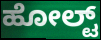
ಹೋಲ್ಟ್